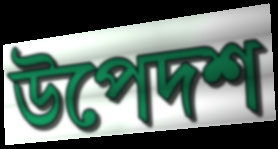
উপেদশ